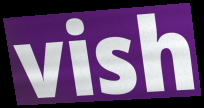
vish